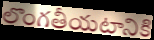
లొంగతీయటానికి